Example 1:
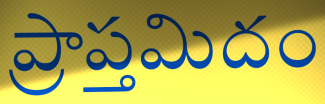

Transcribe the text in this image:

ప్రాప్తమిదం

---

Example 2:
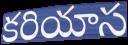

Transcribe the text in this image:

కరియాస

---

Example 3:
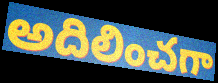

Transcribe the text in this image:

అదిలించగా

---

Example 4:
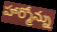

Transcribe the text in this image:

హార్మోన్ను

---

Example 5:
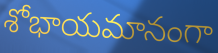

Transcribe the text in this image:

శోభాయమానంగా